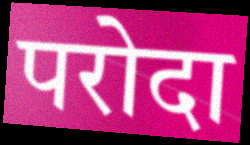
परोदा